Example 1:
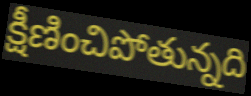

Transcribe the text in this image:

క్షీణించిపోతున్నది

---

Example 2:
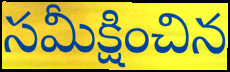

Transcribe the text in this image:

సమీక్షించిన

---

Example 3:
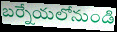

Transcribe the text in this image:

బర్నేయలోనుండి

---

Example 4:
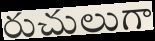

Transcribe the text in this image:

రుచులుగా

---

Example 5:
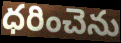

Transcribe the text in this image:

ధరించెను